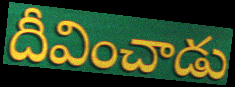
దీవించాడు